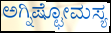
ಅಗ್ನಿಷ್ಟೋಮಸ್ಯ